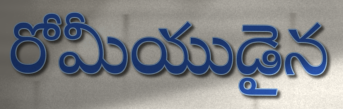
రోమీయుడైన